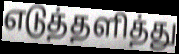
எடுத்தளித்து